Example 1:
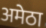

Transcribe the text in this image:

अमेठा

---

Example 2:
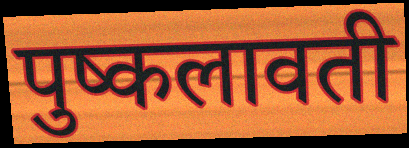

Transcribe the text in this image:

पुष्कलावती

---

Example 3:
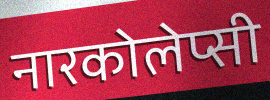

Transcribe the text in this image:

नारकोलेप्सी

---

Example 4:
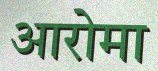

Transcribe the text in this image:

आरोमा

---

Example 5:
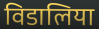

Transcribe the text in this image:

विडालिया